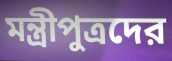
মন্ত্রীপুত্রদের